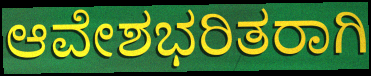
ಆವೇಶಭರಿತರಾಗಿ